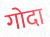
गोदा